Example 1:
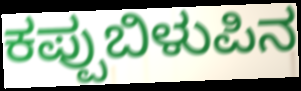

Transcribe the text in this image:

ಕಪ್ಪುಬಿಳುಪಿನ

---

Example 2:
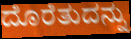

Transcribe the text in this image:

ದೊರೆತುದನ್ನು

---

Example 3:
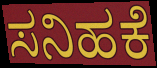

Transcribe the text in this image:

ಸನಿಹಕೆ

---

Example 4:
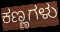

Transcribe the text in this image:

ಕಣ್ಣಗಳು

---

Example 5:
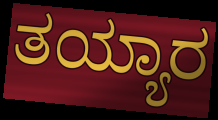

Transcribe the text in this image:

ತಯ್ಯಾರ